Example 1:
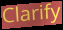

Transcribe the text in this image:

Clarify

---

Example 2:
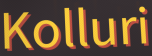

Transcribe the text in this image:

Kolluri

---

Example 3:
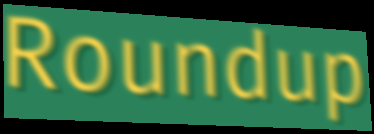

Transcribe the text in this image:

Roundup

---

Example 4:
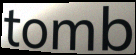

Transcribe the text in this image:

tomb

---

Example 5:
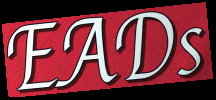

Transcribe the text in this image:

EADs